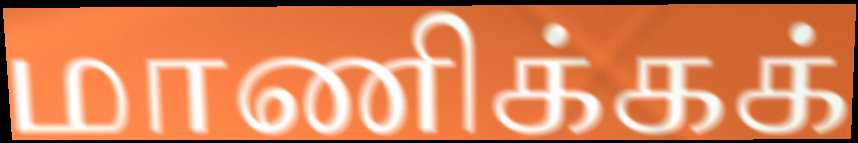
மாணிக்கக்